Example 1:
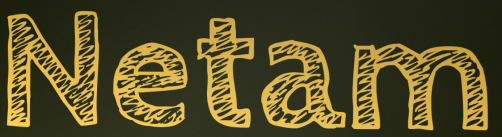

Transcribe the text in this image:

Netam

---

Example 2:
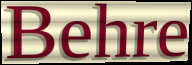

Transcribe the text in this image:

Behre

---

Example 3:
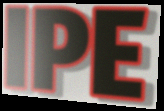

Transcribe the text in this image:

IPE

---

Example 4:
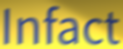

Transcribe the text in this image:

Infact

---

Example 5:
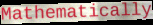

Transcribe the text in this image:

Mathematically